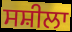
ਸਸ਼ੀਲਾ